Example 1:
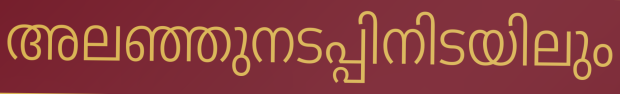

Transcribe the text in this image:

അലഞ്ഞുനടപ്പിനിടയിലും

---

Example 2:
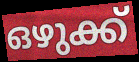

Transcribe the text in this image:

ഒഴുക്ക്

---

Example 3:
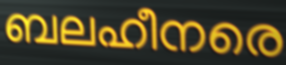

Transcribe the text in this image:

ബലഹീനരെ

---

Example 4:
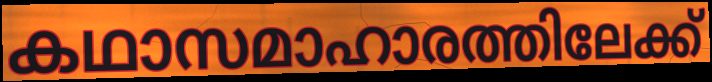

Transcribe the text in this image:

കഥാസമാഹാരത്തിലേക്ക്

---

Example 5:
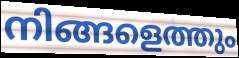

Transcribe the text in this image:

നിങ്ങളെത്തും